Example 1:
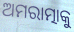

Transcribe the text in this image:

ଅମରାତ୍ମାକୁ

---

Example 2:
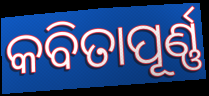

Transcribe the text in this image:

କବିତାପୂର୍ଣ୍ଣ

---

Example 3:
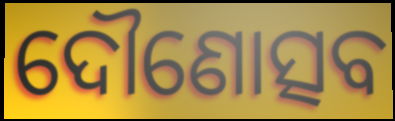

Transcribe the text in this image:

ଦୌଣୋତ୍ସବ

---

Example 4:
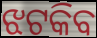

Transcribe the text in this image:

ଝଟକିବ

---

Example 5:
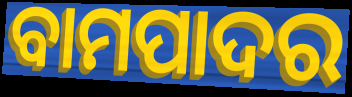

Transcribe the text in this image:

ବାମପାଦର